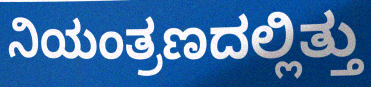
ನಿಯಂತ್ರಣದಲ್ಲಿತ್ತು